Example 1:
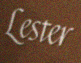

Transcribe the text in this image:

Lester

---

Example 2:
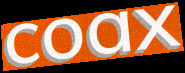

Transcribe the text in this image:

coax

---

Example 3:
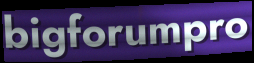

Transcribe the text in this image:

bigforumpro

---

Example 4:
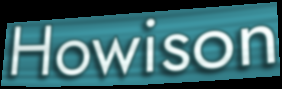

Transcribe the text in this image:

Howison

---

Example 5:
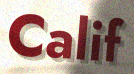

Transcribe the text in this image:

Calif